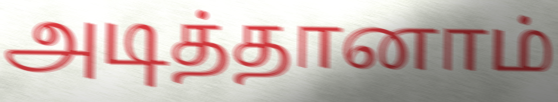
அடித்தானாம்